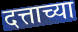
दत्ताच्या